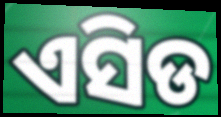
ଏସିଡ